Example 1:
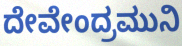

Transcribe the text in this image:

ದೇವೇಂದ್ರಮುನಿ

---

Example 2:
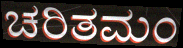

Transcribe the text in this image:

ಚರಿತಮಂ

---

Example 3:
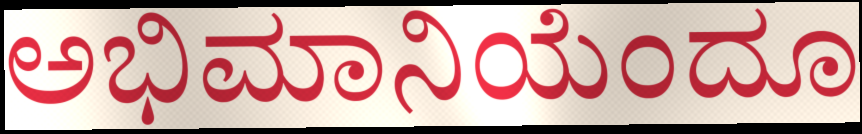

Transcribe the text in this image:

ಅಭಿಮಾನಿಯೆಂದೂ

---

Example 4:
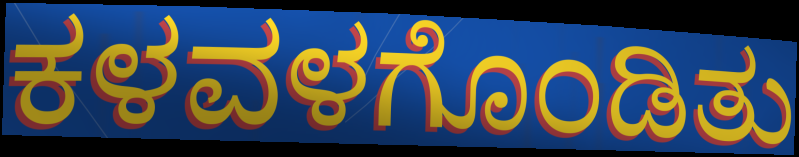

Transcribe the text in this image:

ಕಳವಳಗೊಂಡಿತು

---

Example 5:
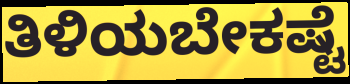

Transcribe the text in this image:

ತಿಳಿಯಬೇಕಷ್ಟೆ